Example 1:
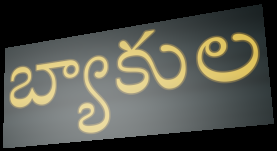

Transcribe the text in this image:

బ్యాకుల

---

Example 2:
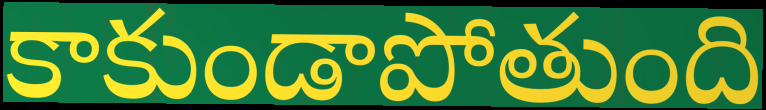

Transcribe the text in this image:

కాకుండాపోతుంది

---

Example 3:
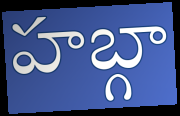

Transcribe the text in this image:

హబ్గా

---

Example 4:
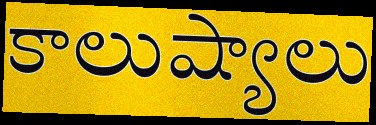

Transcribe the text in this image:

కాలుష్యాలు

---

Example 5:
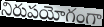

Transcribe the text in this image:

నిరుపయోగంగా